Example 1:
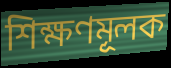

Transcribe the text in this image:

শিক্ষণমূলক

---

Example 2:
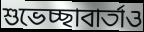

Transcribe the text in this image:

শুভেচ্ছাবার্তাও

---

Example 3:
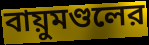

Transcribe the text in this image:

বায়ুমণ্ডলের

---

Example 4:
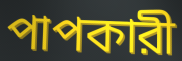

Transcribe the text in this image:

পাপকারী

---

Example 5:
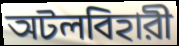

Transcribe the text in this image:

অটলবিহারী